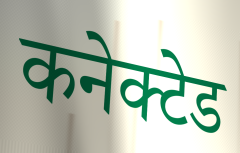
कनेक्टेड